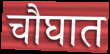
चौघात